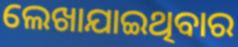
ଲେଖାଯାଇଥିବାର